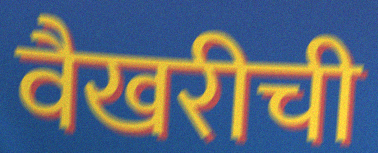
वैखरीची